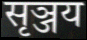
सृञ्जय